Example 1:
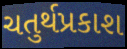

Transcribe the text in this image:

ચતુર્થપ્રકાશ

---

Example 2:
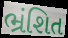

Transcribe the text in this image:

ભ્રંશિત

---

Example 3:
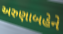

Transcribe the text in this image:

અરુણાબહેને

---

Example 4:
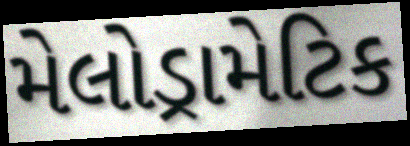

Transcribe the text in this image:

મેલોડ્રામેટિક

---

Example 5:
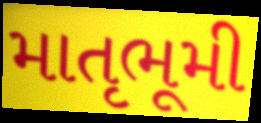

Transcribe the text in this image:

માતૃભૂમી